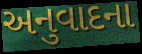
અનુવાદના